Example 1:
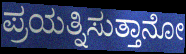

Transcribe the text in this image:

ಪ್ರಯತ್ನಿಸುತ್ತಾನೋ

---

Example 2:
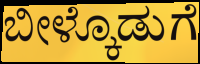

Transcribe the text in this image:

ಬೀಳ್ಕೊಡುಗೆ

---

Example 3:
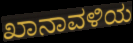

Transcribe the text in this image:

ಖಾನಾವಳಿಯ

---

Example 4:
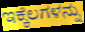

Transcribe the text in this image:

ಇಕ್ಕೆಲಗಳನ್ನು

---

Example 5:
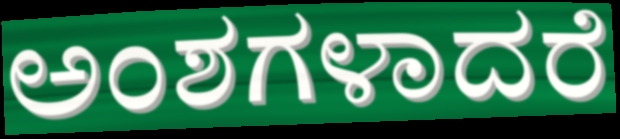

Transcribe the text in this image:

ಅಂಶಗಳಾದರೆ